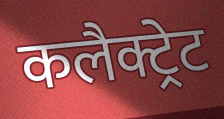
कलैक्ट्रेट